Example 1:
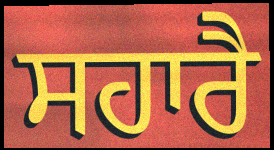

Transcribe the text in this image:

ਸਹਾਰੈ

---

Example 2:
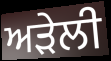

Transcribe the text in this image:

ਅੜੇਲੀ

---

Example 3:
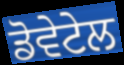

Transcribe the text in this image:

ਡੋਵੇਟੇਲ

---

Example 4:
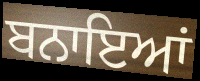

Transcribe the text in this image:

ਬਨਾਇਆਂ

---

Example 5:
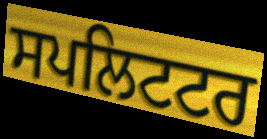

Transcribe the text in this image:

ਸਪਲਿਟਟਰ